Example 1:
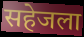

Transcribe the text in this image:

सहेजला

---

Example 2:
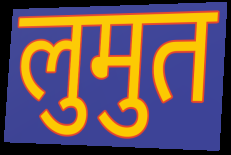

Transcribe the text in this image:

लुमुत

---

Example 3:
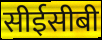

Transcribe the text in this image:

सीईसीबी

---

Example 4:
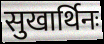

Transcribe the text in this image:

सुखार्थिनः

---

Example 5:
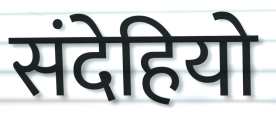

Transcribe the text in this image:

संदेहियो